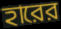
হারের